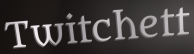
Twitchett